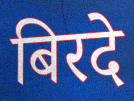
बिरदे